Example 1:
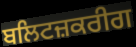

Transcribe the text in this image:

ਬਲਿਟਜ਼ਕਰੀਗ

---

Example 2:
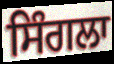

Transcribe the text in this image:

ਸਿੰਗਲਾ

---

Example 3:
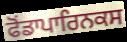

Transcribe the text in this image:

ਫੋਂਡਾਪਾਰਿਨਕਸ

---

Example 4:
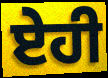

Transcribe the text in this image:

ਏਹੀ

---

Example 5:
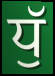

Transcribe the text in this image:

ਧੁੱ